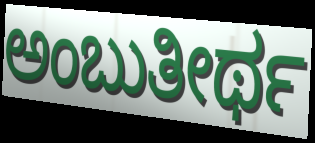
ಅಂಬುತೀರ್ಥ